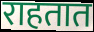
राहतात